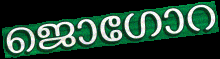
ജൊഗോറ